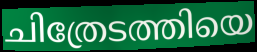
ചിത്രേടത്തിയെ